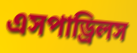
এসপাড্রিলস